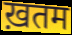
ख़तम